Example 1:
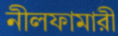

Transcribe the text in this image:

নীলফামারী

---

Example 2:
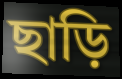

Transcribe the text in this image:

ছাড়ি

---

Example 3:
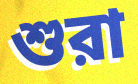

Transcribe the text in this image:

শুরা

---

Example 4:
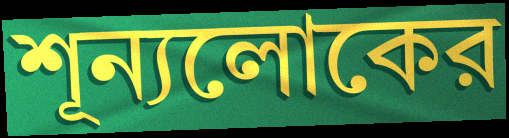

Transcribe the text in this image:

শূন্যলোকের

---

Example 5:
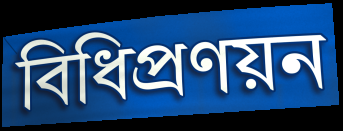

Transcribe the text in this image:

বিধিপ্রণয়ন